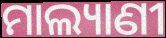
ମାଲ୍ୟାଣୀ